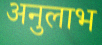
अनुलाभ